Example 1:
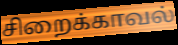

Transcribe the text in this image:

சிறைக்காவல்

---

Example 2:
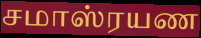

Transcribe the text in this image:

சமாஸ்ரயண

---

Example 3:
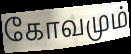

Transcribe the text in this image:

கோவமும்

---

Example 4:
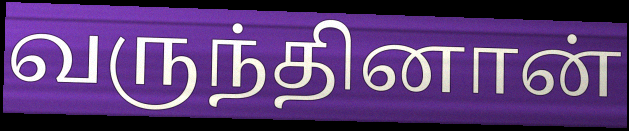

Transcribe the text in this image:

வருந்தினான்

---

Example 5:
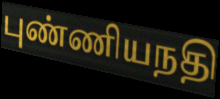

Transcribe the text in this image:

புண்ணியநதி